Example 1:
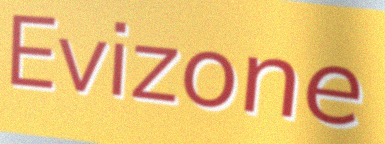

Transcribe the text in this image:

Evizone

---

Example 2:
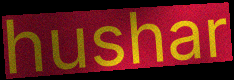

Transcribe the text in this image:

hushar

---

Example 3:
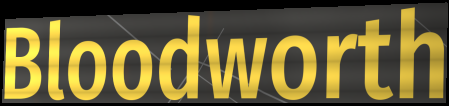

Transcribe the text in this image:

Bloodworth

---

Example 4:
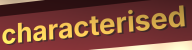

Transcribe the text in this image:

characterised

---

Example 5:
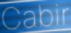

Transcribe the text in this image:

Cabir